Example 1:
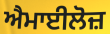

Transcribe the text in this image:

ਐਮਾਈਲੋਜ਼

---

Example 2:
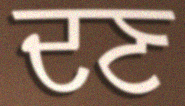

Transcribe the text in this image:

ਦਣ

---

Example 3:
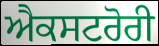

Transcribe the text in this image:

ਐਕਸਟਰੋਰੀ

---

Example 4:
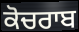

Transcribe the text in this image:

ਕੋਚਰਾਬ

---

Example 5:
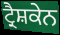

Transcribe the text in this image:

ਟ੍ਰੈਸ਼ਕੇਨ